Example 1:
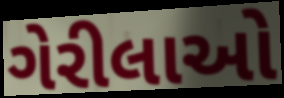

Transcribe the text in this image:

ગેરીલાઓ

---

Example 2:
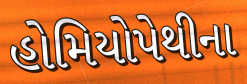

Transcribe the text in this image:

હોમિયોપેથીના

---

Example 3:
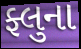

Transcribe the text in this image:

ફ્લુના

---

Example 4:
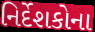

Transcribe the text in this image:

નિર્દેશકોના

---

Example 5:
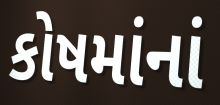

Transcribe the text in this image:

કોષમાંનાં